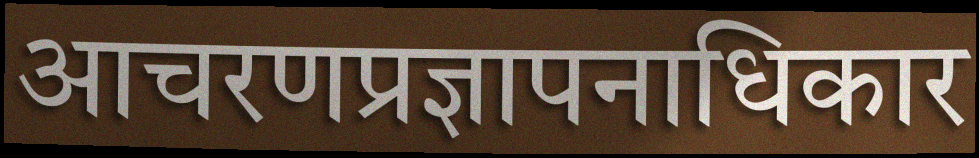
आचरणप्रज्ञापनाधिकार